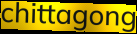
chittagong